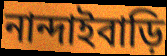
নান্দাইবাড়ি